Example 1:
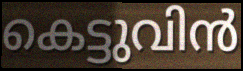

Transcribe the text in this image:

കെട്ടുവിൻ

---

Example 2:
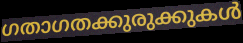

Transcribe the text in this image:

ഗതാഗതക്കുരുക്കുകൾ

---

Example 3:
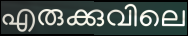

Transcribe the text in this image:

എരുക്കുവിലെ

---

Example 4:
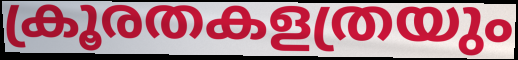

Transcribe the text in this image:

ക്രൂരതകളത്രയും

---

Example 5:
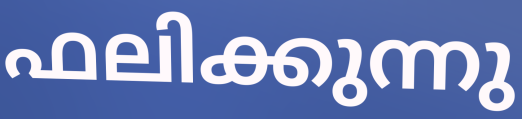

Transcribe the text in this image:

ഫലിക്കുന്നു